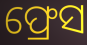
ଫ୍ରେସ